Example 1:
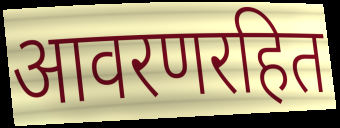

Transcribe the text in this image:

आवरणरहित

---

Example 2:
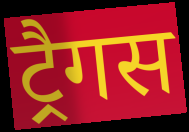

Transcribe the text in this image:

ट्रैगस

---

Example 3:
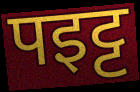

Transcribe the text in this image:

पइट्ट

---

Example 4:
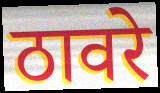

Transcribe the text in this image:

ठावरे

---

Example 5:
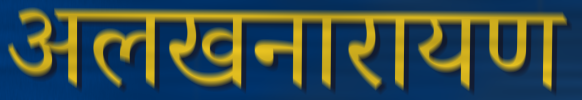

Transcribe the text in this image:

अलखनारायण